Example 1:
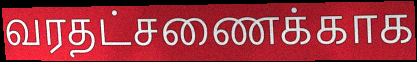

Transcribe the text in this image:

வரதட்சணைக்காக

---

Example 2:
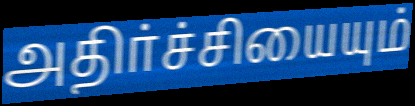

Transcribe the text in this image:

அதிர்ச்சியையும்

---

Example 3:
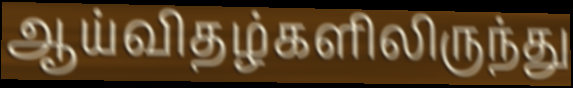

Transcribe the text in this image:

ஆய்விதழ்களிலிருந்து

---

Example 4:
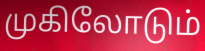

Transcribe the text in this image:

முகிலோடும்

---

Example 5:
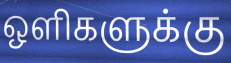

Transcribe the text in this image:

ஒளிகளுக்கு